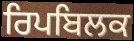
ਰਿਪਬਿਲਕ